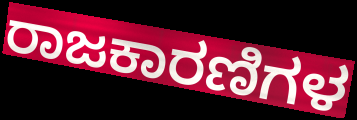
ರಾಜಕಾರಣಿಗಳ